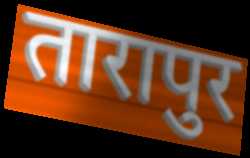
तारापुर